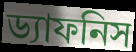
ড্যাফনিস